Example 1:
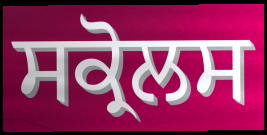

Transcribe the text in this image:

ਸਕ੍ਰੋਲਸ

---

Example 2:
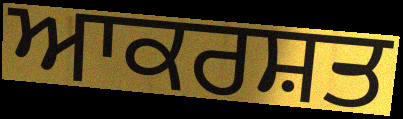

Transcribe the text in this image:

ਆਕਰਸ਼ਤ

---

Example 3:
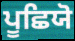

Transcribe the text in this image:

ਪੂਛਿਯੋ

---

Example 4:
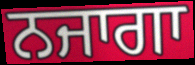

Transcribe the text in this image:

ਨਜਾਗਾ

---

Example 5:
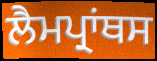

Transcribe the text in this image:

ਲੈਮਪ੍ਰਾਂਥਸ